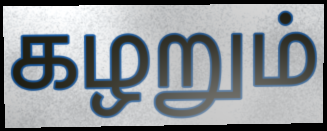
கழறும்